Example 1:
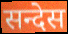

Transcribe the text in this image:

सन्देस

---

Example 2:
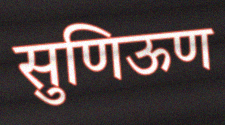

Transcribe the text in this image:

सुणिऊण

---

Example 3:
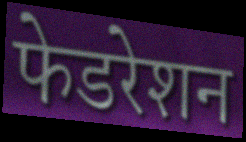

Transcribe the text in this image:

फेडरेशन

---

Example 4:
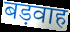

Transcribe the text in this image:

बड़वाह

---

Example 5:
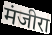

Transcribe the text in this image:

मंजीरा